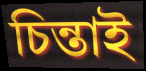
চিন্তাই